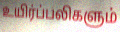
உயிர்ப்பலிகளும்